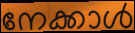
നേക്കാൾ